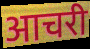
आचरी